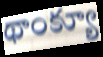
థాంక్యూ